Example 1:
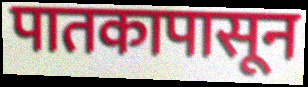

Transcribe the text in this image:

पातकापासून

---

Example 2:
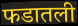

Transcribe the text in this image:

फडातली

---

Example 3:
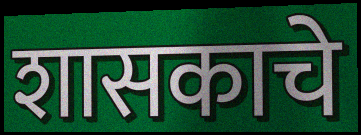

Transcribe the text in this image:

शासकाचे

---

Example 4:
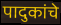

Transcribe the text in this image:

पादुकांचे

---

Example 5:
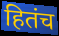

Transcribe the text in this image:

हितंच